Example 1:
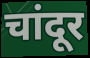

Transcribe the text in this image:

चांदूर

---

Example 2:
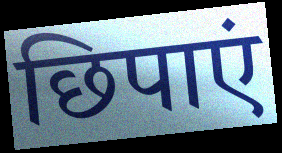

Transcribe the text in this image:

छिपाएं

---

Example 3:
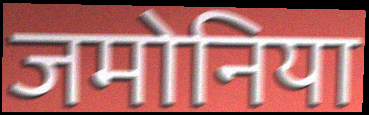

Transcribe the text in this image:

जमोनिया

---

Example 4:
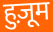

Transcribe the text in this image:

हुज़ूम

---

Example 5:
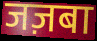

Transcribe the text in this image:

जज़बा